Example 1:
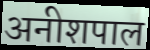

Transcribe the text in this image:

अनीशपाल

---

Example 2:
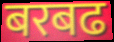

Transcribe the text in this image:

बरबढ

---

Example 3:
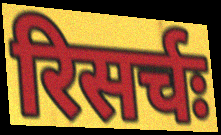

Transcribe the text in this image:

रिसर्चः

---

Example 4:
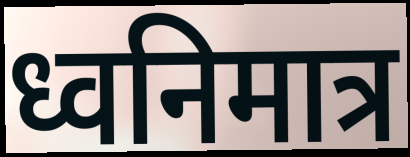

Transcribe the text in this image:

ध्वनिमात्र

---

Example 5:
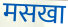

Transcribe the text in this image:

मसखा